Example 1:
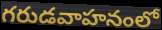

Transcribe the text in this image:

గరుడవాహనంలో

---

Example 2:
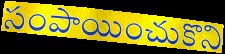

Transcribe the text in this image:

సంపాయించుకొని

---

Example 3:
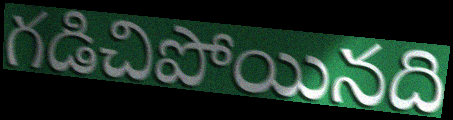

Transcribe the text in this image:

గడిచిపోయినది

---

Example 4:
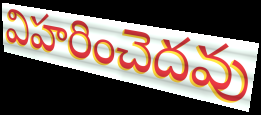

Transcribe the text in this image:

విహరించెదవు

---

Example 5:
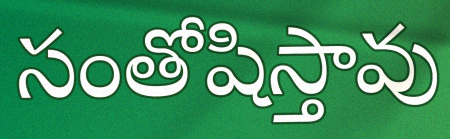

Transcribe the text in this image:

సంతోషిస్తావు